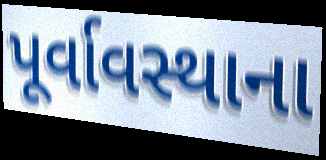
પૂર્વાવસ્થાના